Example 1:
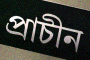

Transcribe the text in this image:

প্ৰাচীন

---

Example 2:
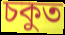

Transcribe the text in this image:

চকুত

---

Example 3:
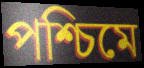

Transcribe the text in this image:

পশ্চিমে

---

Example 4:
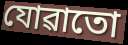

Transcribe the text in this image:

যোৱাতো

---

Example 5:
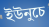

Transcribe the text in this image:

ইউনুচে